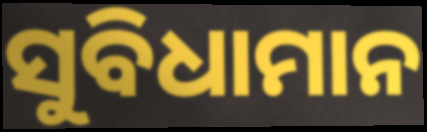
ସୁବିଧାମାନ